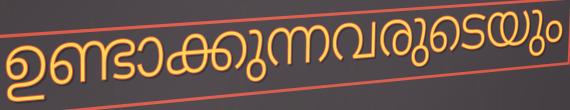
ഉണ്ടാക്കുന്നവരുടെയും